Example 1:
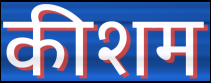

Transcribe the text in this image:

कीशम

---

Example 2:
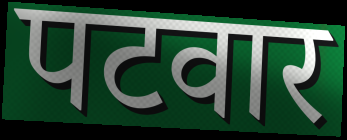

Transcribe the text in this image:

पटवार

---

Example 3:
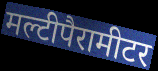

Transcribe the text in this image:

मल्टीपैरामीटर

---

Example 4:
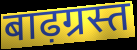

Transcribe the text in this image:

बाढ़ग्रस्त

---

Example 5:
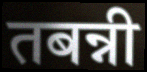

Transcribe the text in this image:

तबन्नी